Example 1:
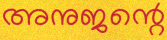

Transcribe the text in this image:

അനുജന്റെ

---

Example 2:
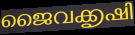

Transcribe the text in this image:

ജൈവക്കൃഷി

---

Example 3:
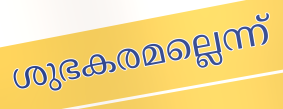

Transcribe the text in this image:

ശുഭകരമല്ലെന്ന്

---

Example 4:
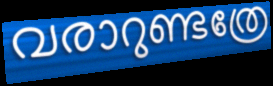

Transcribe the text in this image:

വരാറുണ്ടത്രേ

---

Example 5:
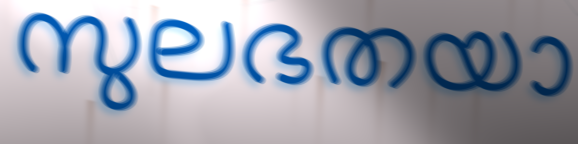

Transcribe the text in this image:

സുലഭതയാ